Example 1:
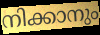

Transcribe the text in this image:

നിക്കാനും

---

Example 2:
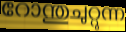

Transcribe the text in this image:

റോന്തുചുറ്റുന്ന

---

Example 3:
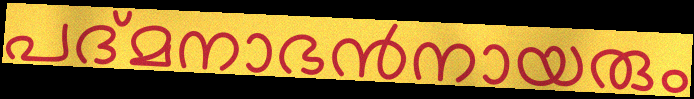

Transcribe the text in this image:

പദ്മനാഭൻനായരും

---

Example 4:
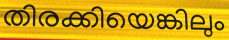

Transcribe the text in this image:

തിരക്കിയെങ്കിലും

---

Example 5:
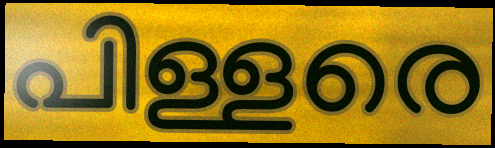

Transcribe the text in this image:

പിള്ളരെ